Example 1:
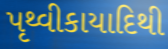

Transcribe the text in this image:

પૃથ્વીકાયાદિથી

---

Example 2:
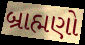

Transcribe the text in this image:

બ્રાહ્મણો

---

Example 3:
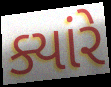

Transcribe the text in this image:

ક્યાંરે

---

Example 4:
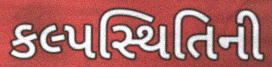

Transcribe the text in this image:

કલ્પસ્થિતિની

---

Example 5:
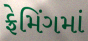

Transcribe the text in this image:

ફ્રેમિંગમાં